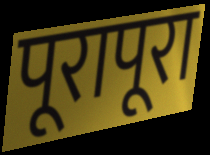
पूरापूरा